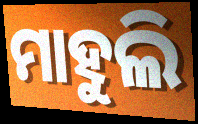
ମାହୁଲି